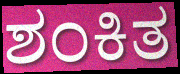
ಶಂಕಿತ